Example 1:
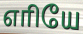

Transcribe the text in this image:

எரியே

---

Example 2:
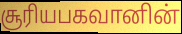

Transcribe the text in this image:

சூரியபகவானின்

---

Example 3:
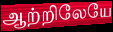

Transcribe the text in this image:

ஆற்றிலேயே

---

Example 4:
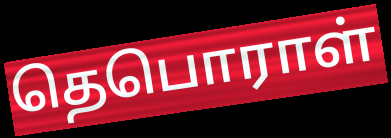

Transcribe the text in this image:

தெபொராள்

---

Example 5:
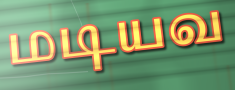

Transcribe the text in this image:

மடியவ